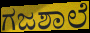
ಗಜಶಾಲೆ